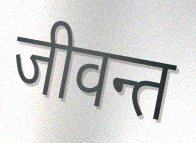
जीवन्त